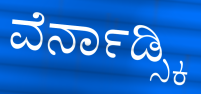
ವೆರ್ನಾಡ್ಸ್ಕಿ